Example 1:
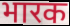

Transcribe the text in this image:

भारक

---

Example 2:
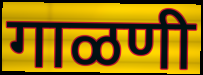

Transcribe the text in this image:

गाळणी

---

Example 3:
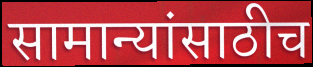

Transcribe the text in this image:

सामान्यांसाठीच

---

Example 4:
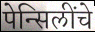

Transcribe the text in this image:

पेन्सिलींचे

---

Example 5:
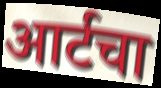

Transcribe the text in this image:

आर्टचा